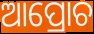
ଆପ୍ରୋଚ